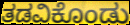
ತಡವಿಕೊಂಡು